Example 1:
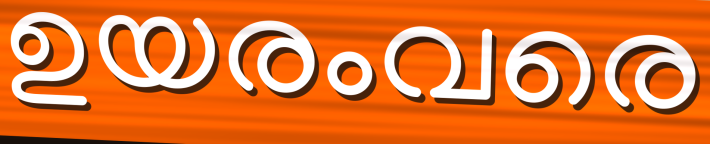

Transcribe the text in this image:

ഉയരംവരെ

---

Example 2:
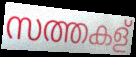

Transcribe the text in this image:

സത്തകള്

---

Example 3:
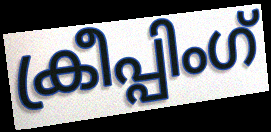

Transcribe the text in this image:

ക്രീപ്പിംഗ്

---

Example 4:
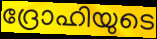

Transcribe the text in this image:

ദ്രോഹിയുടെ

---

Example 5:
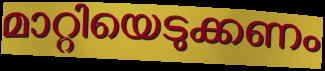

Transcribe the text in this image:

മാറ്റിയെടുക്കണം